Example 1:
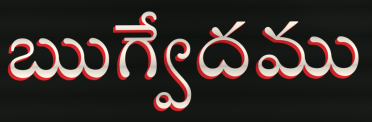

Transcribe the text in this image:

ఋగ్వేదము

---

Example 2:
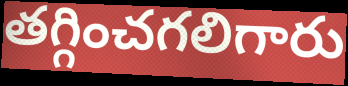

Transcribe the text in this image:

తగ్గించగలిగారు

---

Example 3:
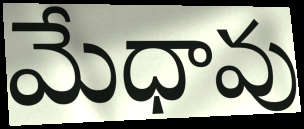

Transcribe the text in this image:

మేధావు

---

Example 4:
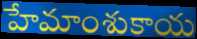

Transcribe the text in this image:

హేమాంశుకాయ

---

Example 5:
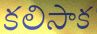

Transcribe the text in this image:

కలిసాక